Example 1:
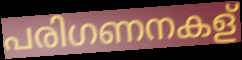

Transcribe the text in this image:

പരിഗണനകള്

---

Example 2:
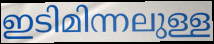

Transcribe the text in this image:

ഇടിമിന്നലുള്ള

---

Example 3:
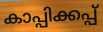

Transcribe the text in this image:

കാപ്പിക്കപ്പ്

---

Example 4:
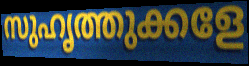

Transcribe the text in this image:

സുഹൃത്തുക്കളേ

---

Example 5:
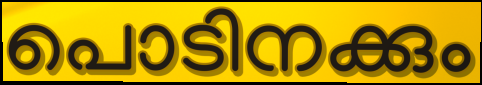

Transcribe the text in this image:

പൊടിനക്കും